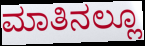
ಮಾತಿನಲ್ಲೂ